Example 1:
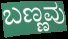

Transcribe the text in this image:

ಬಣ್ಣವು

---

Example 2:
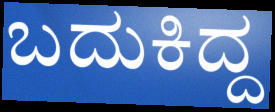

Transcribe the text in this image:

ಬದುಕಿದ್ದ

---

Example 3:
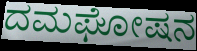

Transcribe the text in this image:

ದಮಘೋಷನ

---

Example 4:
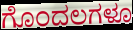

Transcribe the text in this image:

ಗೊಂದಲಗಳೂ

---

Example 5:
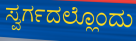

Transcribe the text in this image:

ಸ್ವರ್ಗದಲ್ಲೊಂದು